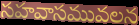
సహవాసమువలన